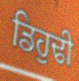
ਡਿਹੁਢੀ